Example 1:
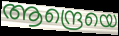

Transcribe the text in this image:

ആന്ദ്രെയെ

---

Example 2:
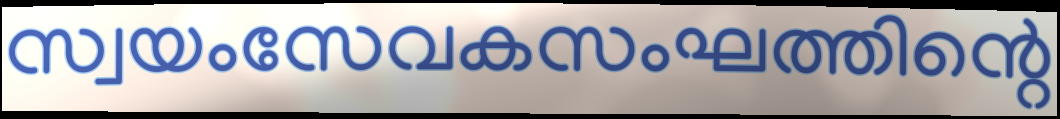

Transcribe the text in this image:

സ്വയംസേവകസംഘത്തിന്റെ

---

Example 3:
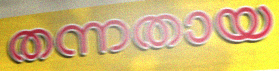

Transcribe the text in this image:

തന്നതായ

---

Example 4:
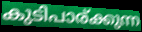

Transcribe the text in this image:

കുടിപാര്ക്കുന്ന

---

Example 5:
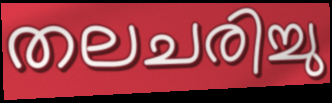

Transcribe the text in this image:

തലചരിച്ചു